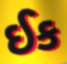
ઈક